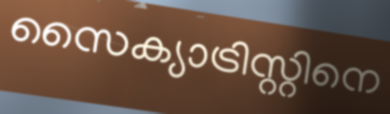
സൈക്യാട്രിസ്റ്റിനെ